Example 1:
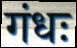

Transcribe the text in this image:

गंधः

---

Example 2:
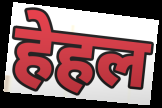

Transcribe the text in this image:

हेहल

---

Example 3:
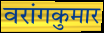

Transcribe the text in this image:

वरांगकुमार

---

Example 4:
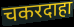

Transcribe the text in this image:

चकरदाहा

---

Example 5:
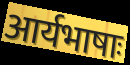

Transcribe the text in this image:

आर्यभाषाः